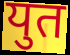
युत